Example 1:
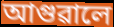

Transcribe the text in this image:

আগুৱালে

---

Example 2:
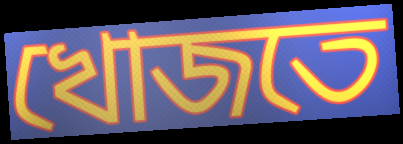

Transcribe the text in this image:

খোজতে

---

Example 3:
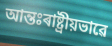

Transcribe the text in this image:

আন্তঃৰাষ্ট্ৰীয়ভাৱে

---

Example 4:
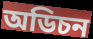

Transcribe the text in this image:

অডিচন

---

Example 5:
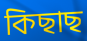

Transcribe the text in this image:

কিছাছ